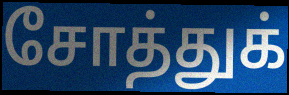
சோத்துக்